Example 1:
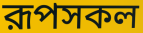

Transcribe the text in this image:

রূপসকল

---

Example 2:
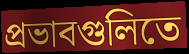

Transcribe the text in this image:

প্রভাবগুলিতে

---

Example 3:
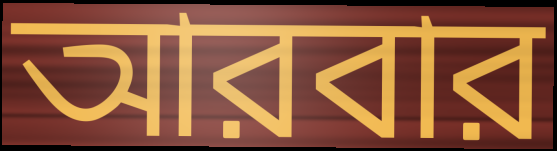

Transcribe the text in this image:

আরবার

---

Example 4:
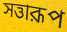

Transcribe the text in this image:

সত্তারূপ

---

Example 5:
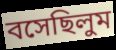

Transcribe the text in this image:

বসেছিলুম